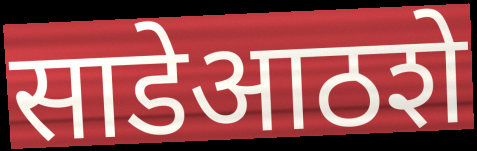
साडेआठशे